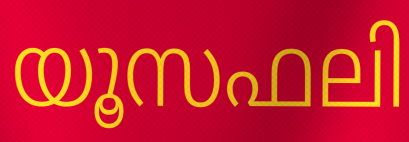
യൂസഫലി